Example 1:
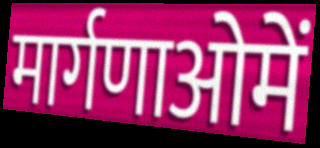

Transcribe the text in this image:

मार्गणाओमें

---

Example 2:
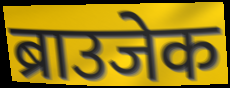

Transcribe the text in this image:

ब्राउजेक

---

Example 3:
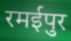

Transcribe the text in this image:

रमईपुर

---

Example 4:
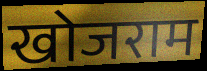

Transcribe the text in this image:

खोजराम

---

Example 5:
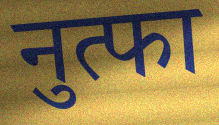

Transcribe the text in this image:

नुत्फा